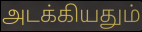
அடக்கியதும்